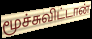
மூச்சுவிட்டான்